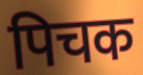
पिचक